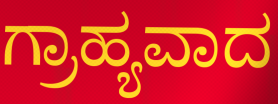
ಗ್ರಾಹ್ಯವಾದ